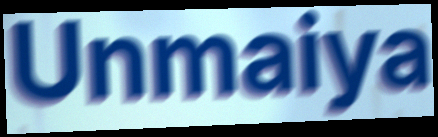
Unmaiya